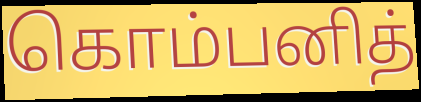
கொம்பனித்